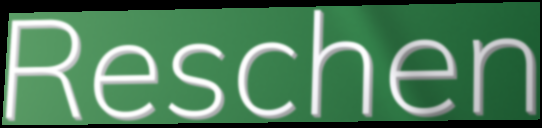
Reschen